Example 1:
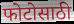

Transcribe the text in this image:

फोटोसाठी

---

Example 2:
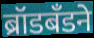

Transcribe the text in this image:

ब्रॉडबँडने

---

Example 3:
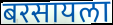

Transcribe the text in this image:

बरसायला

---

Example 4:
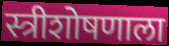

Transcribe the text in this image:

स्त्रीशोषणाला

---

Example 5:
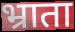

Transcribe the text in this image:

भ्राता